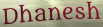
Dhanesh